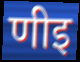
णीइ